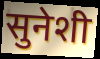
सुनेशी